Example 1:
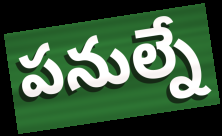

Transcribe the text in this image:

పనుల్నే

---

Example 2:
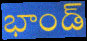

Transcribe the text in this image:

భాండ్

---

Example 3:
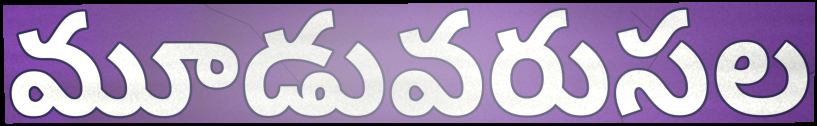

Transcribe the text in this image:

మూడువరుసల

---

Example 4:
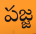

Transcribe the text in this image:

పజ్జ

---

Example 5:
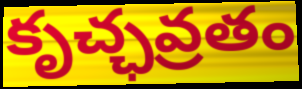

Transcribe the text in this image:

కృచ్ఛవ్రతం